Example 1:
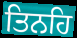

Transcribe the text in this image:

ਤਿਨਹਿ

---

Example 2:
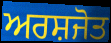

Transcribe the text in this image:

ਅਰਸ਼ਜੋਤ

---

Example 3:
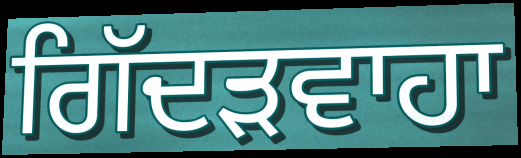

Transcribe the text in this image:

ਗਿੱਦੜਵਾਹਾ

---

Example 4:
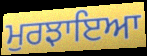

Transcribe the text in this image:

ਮੁਰਝਾਇਆ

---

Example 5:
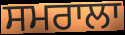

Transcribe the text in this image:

ਸਮਰਾਲਾ